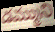
డమ్ముని